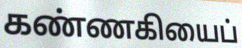
கண்ணகியைப்